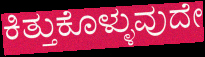
ಕಿತ್ತುಕೊಳ್ಳುವುದೇ